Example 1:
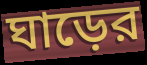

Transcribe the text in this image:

ঘাড়ের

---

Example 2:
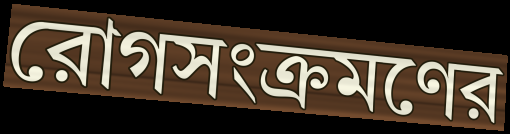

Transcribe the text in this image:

রোগসংক্রমণের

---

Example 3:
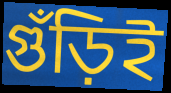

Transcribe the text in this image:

গুঁড়িই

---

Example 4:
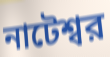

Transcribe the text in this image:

নাটেশ্বর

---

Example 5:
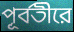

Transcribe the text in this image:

পূর্বতীরে